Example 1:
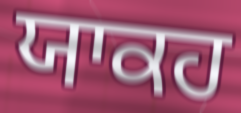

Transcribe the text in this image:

ਯਾਕਹ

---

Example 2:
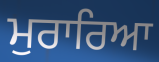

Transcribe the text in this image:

ਮੁਰਾਰਿਆ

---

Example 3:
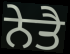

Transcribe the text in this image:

ਨੇਤੈ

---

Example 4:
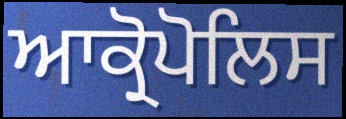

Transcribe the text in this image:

ਆਕ੍ਰੋਪੋਲਿਸ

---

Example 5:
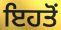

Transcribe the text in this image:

ਇਹਤੋਂ